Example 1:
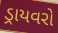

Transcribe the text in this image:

ડ્રાયવરો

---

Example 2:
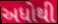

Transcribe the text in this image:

અધોથી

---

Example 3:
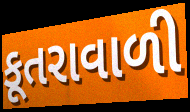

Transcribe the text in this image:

કૂતરાવાળી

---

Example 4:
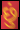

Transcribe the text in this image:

છું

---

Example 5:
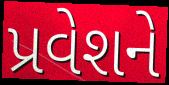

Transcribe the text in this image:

પ્રવેશને